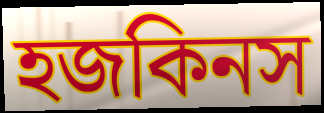
হজকিনস